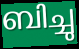
ബിച്ചു